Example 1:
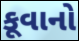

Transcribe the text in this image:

કૂવાનો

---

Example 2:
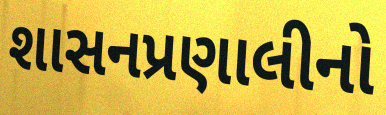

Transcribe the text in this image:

શાસનપ્રણાલીનો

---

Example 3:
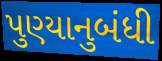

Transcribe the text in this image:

પુણ્યાનુબંધી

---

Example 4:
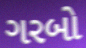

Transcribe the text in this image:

ગરબો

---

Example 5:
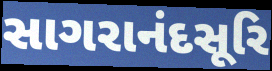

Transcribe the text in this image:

સાગરાનંદસૂરિ